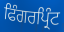
ਫਿੰਗਰਪ੍ਰਿੰਟ